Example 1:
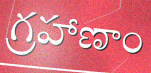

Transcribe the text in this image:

గ్రహాణాం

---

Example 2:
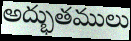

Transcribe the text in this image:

అద్భుతములు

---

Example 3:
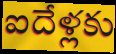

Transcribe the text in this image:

ఐదేళ్లకు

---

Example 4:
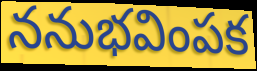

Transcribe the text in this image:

ననుభవింపక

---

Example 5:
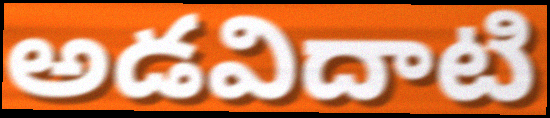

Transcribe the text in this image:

అడవిదాటి